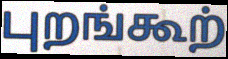
புறங்கூற்